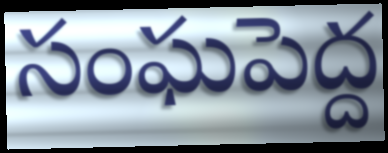
సంఘపెద్ద